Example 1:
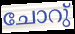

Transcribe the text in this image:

ചോറു്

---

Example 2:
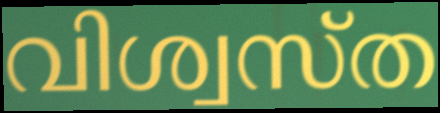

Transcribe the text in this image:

വിശ്വസ്ത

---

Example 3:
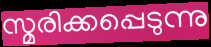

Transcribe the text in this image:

സ്മരിക്കപ്പെടുന്നു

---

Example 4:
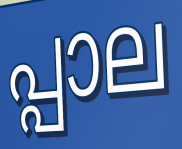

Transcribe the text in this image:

പ്പാല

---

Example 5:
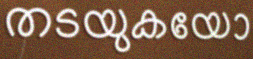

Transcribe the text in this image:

തടയുകയോ